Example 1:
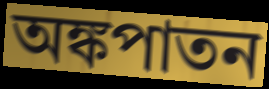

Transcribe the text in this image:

অঙ্কপাতন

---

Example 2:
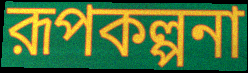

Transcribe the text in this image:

রূপকল্পনা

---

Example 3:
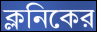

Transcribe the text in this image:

ক্লনিকের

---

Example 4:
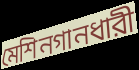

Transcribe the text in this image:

মেশিনগানধারী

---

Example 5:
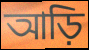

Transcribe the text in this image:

আড়ি